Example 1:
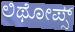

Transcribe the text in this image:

ಲಿಥೋಪ್ಸ್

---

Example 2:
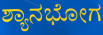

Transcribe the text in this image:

ಶ್ಯಾನಭೋಗ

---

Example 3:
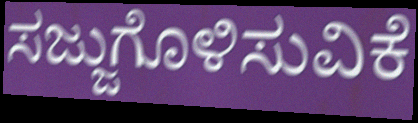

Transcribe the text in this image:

ಸಜ್ಜುಗೊಳಿಸುವಿಕೆ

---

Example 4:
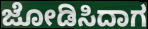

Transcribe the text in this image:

ಜೋಡಿಸಿದಾಗ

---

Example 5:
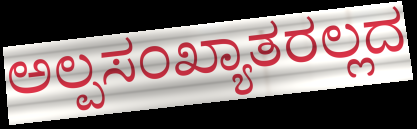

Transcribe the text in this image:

ಅಲ್ಪಸಂಖ್ಯಾತರಲ್ಲದ